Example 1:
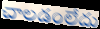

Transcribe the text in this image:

చాలడంలేదు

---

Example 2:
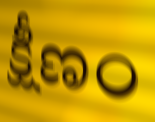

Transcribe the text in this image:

క్షీణం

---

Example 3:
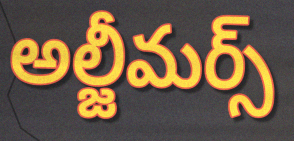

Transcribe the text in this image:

అల్జీమర్స్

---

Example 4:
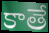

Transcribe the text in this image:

కాతే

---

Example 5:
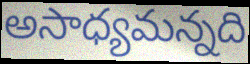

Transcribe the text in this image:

అసాధ్యమన్నది